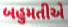
બહુમતીએ